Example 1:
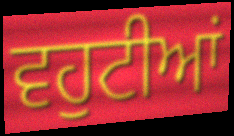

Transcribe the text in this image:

ਵਹੁਟੀਆਂ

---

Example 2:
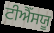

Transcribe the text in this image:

ਟੀਐੱਸਯੂ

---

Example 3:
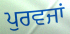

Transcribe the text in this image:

ਪੁਰਵਜਾਂ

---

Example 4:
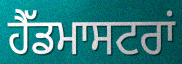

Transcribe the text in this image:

ਹੈੱਡਮਾਸਟਰਾਂ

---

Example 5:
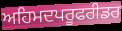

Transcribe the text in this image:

ਅਹਿਮਦਪਰੂਫਰੀਡਰ